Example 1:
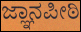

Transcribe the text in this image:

ಜ್ಞಾನಪೀಠಿ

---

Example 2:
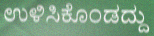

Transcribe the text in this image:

ಉಳಿಸಿಕೊಂಡದ್ದು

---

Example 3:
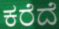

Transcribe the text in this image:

ಕರೆದೆ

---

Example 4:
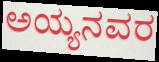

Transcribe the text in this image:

ಅಯ್ಯನವರ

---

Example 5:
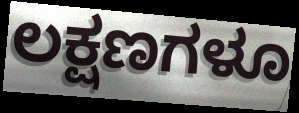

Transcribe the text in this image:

ಲಕ್ಷಣಗಳೂ